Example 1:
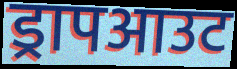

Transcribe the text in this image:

ड्रापआउट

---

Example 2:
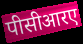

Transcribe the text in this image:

पीसीआरए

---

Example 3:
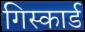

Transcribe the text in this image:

गिस्कार्ड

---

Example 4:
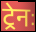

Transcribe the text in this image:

ट्रेनः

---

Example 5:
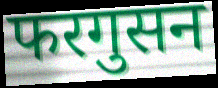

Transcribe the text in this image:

फरगुसन